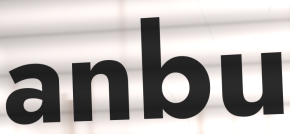
anbu